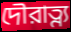
দৌরাত্ন্য